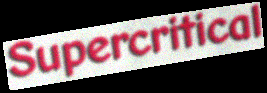
Supercritical